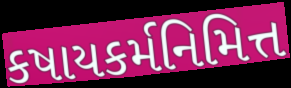
કષાયકર્મનિમિત્ત